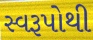
સ્વરૂપોથી